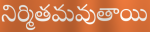
నిర్మితమవుతాయి